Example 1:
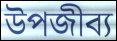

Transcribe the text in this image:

উপজীব্য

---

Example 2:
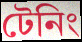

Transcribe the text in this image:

টেনিং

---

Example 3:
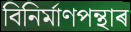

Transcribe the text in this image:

বিনিৰ্মাণপন্থাৰ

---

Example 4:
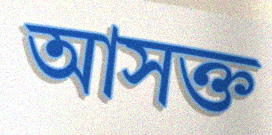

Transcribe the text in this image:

আসক্ত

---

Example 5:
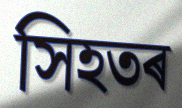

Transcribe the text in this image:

সিহতৰ